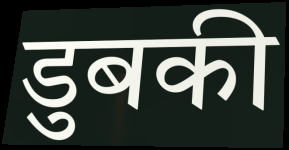
डुबकी